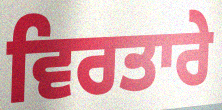
ਵਿਰਤਾਰੇ